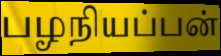
பழநியப்பன்